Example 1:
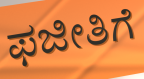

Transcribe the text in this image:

ಫಜೀತಿಗೆ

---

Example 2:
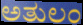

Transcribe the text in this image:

ಅತುಲಂ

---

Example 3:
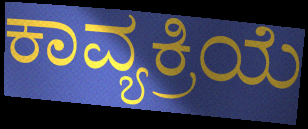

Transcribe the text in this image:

ಕಾವ್ಯಕ್ರಿಯೆ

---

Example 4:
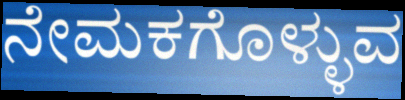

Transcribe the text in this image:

ನೇಮಕಗೊಳ್ಳುವ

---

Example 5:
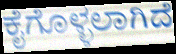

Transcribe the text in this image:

ಕೈಗೊಳ್ಳಲಾಗಿದೆ